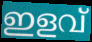
ഇളവ്